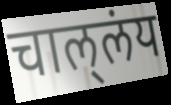
चाल्लंय